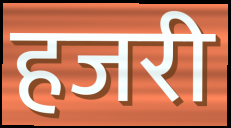
हजरी